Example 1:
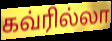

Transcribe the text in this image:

கவ்ரில்லா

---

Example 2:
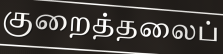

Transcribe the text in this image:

குறைத்தலைப்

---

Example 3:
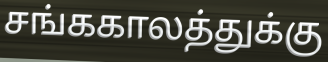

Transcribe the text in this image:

சங்ககாலத்துக்கு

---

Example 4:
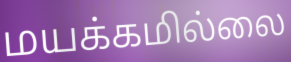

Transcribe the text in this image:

மயக்கமில்லை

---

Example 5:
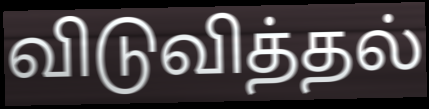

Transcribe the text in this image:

விடுவித்தல்